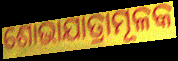
ଶୋଭାଯାତ୍ରାମୂଳକ